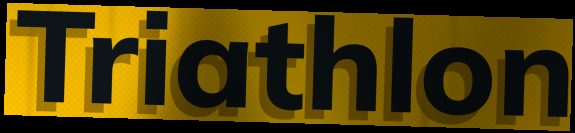
Triathlon